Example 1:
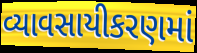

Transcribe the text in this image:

વ્યાવસાયીકરણમાં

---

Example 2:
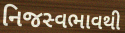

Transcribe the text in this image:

નિજસ્વભાવથી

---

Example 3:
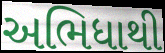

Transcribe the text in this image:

અભિધાથી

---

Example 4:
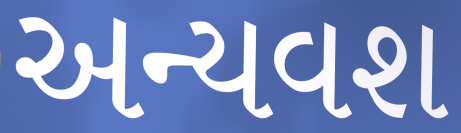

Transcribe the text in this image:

અન્યવશ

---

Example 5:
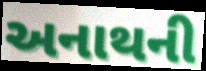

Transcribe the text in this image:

અનાથની